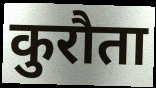
कुरौता